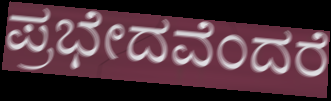
ಪ್ರಭೇದವೆಂದರೆ